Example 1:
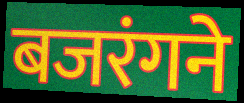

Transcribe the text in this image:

बजरंगने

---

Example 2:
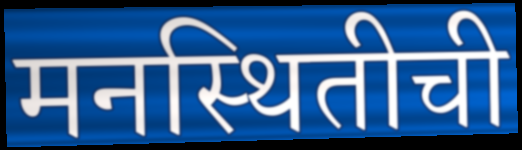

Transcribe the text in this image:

मनस्थितीची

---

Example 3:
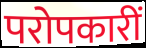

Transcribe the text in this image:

परोपकारीं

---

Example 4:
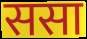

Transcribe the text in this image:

ससा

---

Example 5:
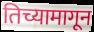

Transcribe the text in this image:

तिच्यामागून